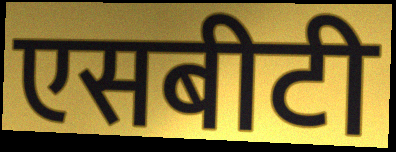
एसबीटी